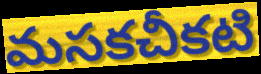
మసకచీకటి